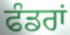
ਫੰਡਰਾਂ